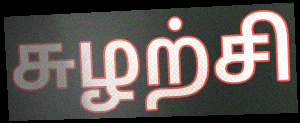
சுழற்சி